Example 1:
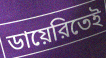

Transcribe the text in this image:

ডায়েরিতেই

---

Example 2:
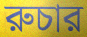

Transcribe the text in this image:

রুচার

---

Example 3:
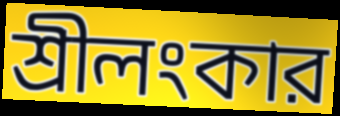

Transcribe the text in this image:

শ্রীলংকার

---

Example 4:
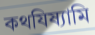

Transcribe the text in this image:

কথযিষ্যামি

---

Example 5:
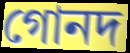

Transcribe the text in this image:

গোনদ